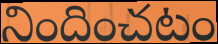
నిందించటం